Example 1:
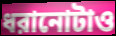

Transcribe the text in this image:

ধরানোটাও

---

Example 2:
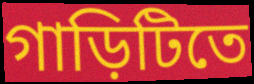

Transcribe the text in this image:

গাড়িটিতে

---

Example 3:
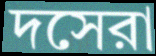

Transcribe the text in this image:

দসেরা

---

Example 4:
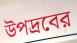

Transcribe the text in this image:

উপদ্রবের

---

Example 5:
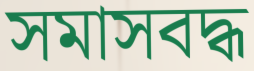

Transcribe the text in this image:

সমাসবদ্ধ